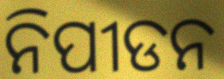
ନିପୀଡନ